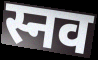
स्नव